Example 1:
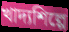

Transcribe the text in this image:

খাদ্যশিল্পে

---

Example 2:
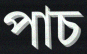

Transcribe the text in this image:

পাচ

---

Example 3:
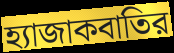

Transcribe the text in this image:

হ্যাজাকবাতির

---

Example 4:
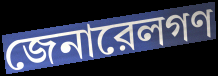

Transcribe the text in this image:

জেনারেলগণ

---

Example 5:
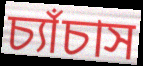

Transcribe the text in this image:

চ্যাঁচাস